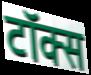
टॉक्स